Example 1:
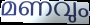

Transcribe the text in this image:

മണവും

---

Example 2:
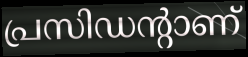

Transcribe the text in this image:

പ്രസിഡന്റാണ്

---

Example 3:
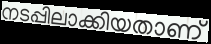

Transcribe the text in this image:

നടപ്പിലാക്കിയതാണ്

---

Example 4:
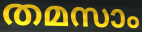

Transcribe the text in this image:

തമസാം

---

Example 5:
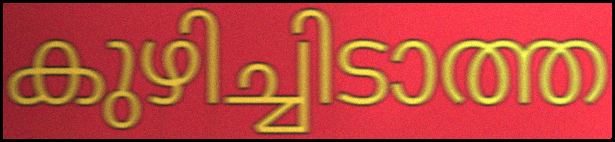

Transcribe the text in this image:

കുഴിച്ചിടാത്ത